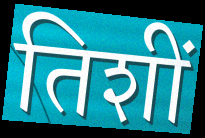
तिशीं